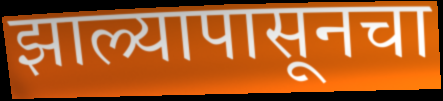
झाल्यापासूनचा